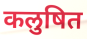
कलुषित